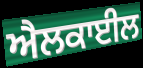
ਐਲਕਾਈਲ